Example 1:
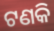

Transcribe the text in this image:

ଟଣକି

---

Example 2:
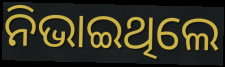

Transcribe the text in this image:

ନିଭାଇଥିଲେ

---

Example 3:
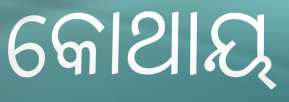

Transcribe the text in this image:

କୋଥାୟ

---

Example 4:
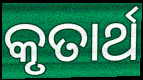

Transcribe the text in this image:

କୃତାର୍ଥ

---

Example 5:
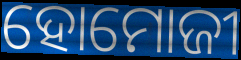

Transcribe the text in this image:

ହୋମୋଜୀ